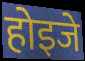
होइजे